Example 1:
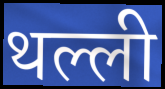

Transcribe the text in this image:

थल्ली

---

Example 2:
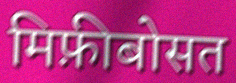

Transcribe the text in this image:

मिफ़ीबोसत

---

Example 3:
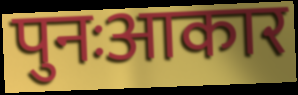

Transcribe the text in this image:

पुनःआकार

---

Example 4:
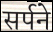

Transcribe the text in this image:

सर्पने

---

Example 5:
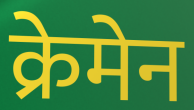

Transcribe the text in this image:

क्रेमेन